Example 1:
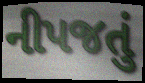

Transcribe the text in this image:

નીપજતું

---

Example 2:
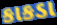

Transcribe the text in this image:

કાકડા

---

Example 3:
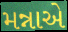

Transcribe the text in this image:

મન્નાએ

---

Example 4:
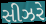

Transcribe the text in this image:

સીઝરે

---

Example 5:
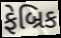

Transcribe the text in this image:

ફેબ્રિક